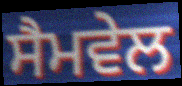
ਸੈਮਵੇਲ